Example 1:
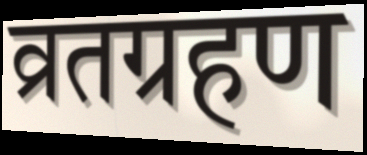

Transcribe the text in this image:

व्रतग्रहण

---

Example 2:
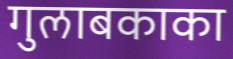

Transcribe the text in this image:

गुलाबकाका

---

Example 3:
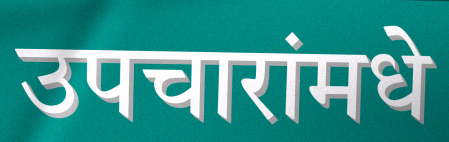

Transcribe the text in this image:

उपचारांमधे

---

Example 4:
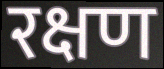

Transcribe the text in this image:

रक्षण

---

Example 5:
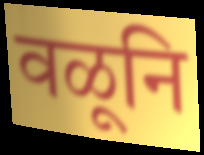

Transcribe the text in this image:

वळूनि